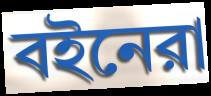
বইনেরা